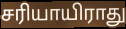
சரியாயிராது